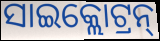
ସାଇକ୍ଲୋଟ୍ରନ୍